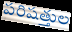
పరిషత్తుల